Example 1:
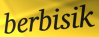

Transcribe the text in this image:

berbisik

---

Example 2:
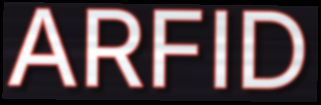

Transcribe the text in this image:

ARFID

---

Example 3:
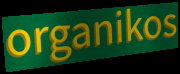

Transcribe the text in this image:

organikos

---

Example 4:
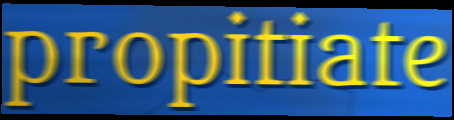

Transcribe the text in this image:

propitiate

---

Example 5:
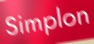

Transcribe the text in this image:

Simplon